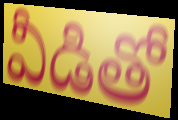
వీడితో